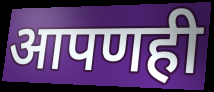
आपणही